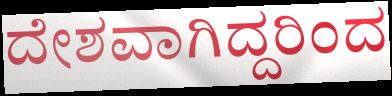
ದೇಶವಾಗಿದ್ದರಿಂದ